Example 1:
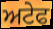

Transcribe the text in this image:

ਅਟੇਫ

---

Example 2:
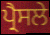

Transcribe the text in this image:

ਪ੍ਰੈਸਲੇ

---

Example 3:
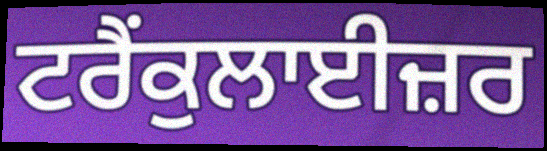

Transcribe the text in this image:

ਟਰੈਂਕੁਲਾਈਜ਼ਰ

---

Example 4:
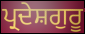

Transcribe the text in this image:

ਪ੍ਰਦੇਸ਼ਗੁਰੂ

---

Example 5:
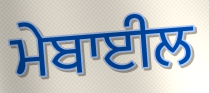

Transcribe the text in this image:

ਮੇਬਾਈਲ